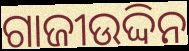
ଗାଜୀଉଦ୍ଦିନ